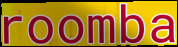
roomba